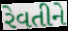
રેવતીને